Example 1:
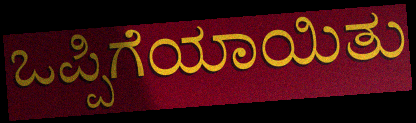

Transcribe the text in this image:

ಒಪ್ಪಿಗೆಯಾಯಿತು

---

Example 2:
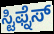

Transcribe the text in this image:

ಸ್ಟಿಫ್ನೆಸ್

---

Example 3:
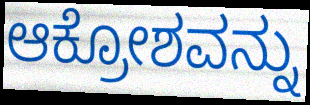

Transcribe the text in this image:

ಆಕ್ರೋಶವನ್ನು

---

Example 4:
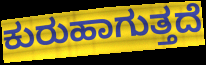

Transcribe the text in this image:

ಕುರುಹಾಗುತ್ತದೆ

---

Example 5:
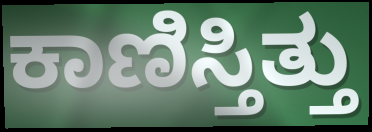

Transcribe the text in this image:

ಕಾಣಿಸ್ತಿತ್ತು